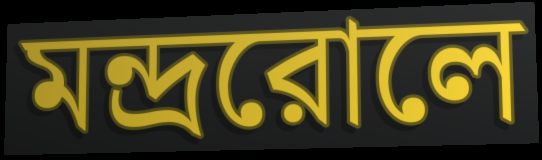
মন্দ্ররোলে